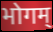
भोगम्